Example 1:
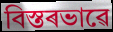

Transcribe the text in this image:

বিস্তৰভাৱে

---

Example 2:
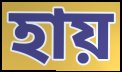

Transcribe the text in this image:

হায়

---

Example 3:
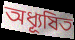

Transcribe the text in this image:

অধ্যূষিত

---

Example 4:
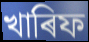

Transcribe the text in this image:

খাৰিফ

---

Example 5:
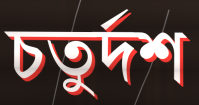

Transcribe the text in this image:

চতুৰ্দশ